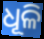
ଧୂଳି